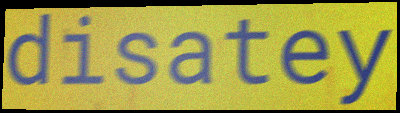
disatey